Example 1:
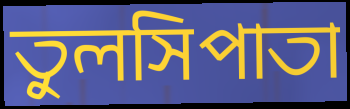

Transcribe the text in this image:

তুলসিপাতা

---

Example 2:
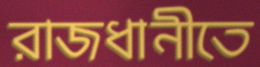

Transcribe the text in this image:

রাজধানীতে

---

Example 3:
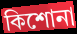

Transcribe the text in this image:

কিশোনা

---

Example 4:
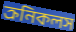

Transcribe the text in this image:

ক্রনিকলস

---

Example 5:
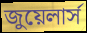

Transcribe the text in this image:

জুয়েলার্স